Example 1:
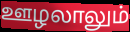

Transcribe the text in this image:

ஊழலாலும்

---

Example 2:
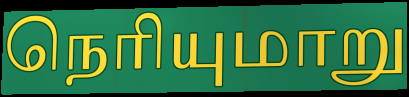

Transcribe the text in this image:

நெரியுமாறு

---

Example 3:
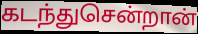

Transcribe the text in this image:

கடந்துசென்றான்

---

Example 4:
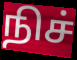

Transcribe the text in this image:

நிச்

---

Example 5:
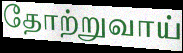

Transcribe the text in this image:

தோற்றுவாய்